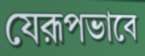
যেরূপভাবে